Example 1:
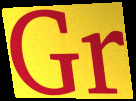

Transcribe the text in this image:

Gr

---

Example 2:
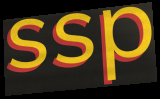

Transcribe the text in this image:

ssp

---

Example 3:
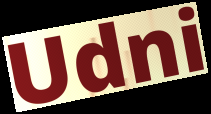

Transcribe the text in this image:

Udni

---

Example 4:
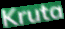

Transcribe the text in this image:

Kruta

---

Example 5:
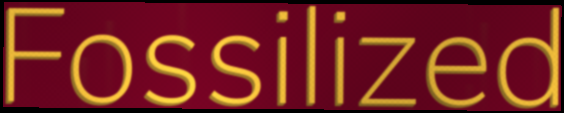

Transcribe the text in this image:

Fossilized